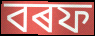
বৰফ